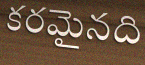
కరమైనది